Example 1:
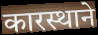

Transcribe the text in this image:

कारस्थाने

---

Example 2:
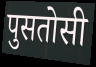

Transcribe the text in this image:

पुसतोसी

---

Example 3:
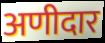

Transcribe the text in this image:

अणीदार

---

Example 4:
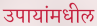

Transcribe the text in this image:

उपायांमधील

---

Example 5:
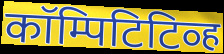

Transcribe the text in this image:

कॉम्पिटिटिव्ह